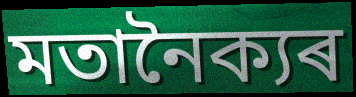
মতানৈক্যৰ